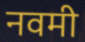
नवमी